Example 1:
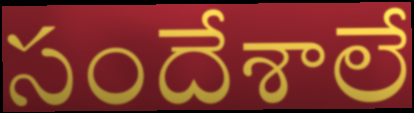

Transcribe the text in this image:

సందేశాలే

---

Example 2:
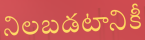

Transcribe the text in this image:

నిలబడటానికీ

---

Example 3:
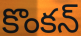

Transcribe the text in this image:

కొంకన్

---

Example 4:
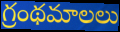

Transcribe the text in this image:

గ్రంథమాలలు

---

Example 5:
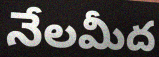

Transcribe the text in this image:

నేలమీద